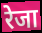
रेजा